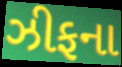
ઝીફના